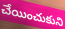
చేయించుకుని